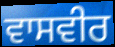
ਵਾਸਵੀਰ